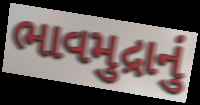
ભાવમુદ્રાનું